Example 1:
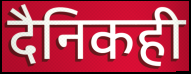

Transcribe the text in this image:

दैनिकही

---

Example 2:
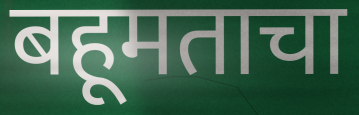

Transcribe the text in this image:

बहूमताचा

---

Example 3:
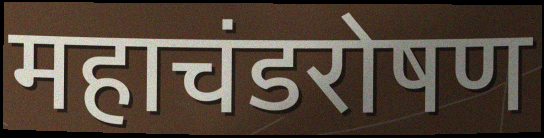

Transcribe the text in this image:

महाचंडरोषण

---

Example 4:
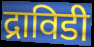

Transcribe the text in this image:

द्राविडी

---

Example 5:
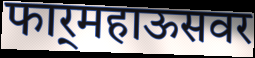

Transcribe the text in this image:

फार्महाऊसवर